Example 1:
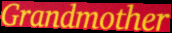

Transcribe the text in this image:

Grandmother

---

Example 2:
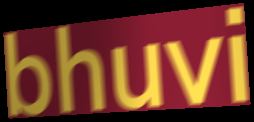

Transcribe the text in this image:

bhuvi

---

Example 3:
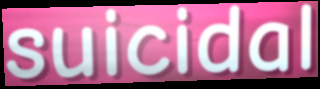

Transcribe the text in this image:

suicidal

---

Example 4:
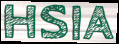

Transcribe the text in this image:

HSIA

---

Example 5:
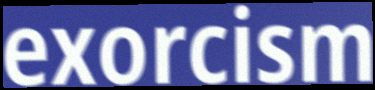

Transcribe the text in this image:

exorcism